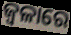
ଜ୍ୱଳାରେ